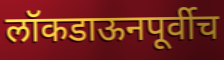
लॉकडाऊनपूर्वीच